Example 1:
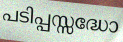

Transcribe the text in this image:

പടിപ്പസ്സദ്ധോ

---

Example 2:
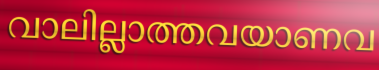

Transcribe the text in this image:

വാലില്ലാത്തവയാണവ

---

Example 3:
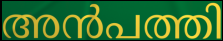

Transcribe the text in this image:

അൻപത്തി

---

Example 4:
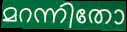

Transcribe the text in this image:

മറന്നിതോ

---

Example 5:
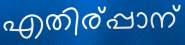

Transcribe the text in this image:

എതിര്പ്പാന്